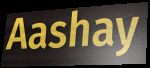
Aashay